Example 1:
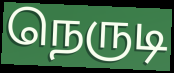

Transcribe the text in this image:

நெருடி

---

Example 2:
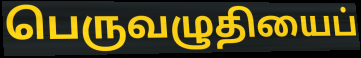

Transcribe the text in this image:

பெருவழுதியைப்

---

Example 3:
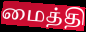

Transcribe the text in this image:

மைத்தி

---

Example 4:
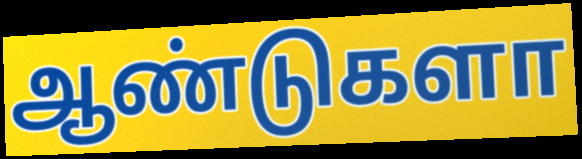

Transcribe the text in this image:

ஆண்டுகளா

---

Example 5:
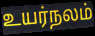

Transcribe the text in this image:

உயர்நலம்